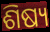
ଶିଷ୍ୟ